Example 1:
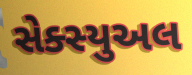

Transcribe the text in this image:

સેક્સ્યુઅલ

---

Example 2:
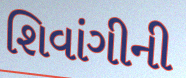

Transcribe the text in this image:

શિવાંગીની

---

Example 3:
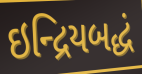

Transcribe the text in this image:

ઇન્દ્રિયબદ્ધં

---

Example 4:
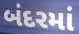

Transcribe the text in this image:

બંદરમાં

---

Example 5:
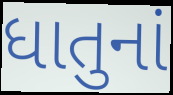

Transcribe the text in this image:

ધાતુનાં